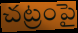
చట్రంపై